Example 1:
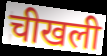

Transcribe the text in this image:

चीखली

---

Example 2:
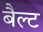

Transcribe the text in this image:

बैल्ट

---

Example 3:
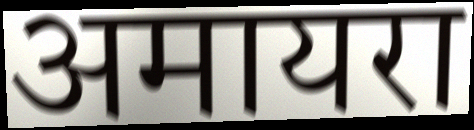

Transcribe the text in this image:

अमायरा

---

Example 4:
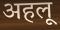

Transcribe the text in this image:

अहलू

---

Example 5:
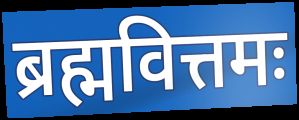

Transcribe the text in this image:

ब्रह्मवित्तमः